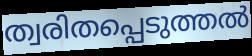
ത്വരിതപ്പെടുത്തൽ